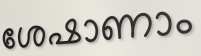
ശേഷാണാം